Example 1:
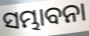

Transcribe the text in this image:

ସମ୍ଭାବନା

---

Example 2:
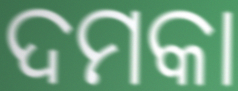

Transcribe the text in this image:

ଦମକା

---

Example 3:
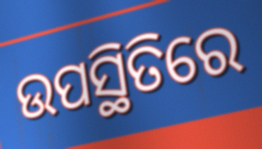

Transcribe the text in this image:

ଉପସ୍ଥିତିରେ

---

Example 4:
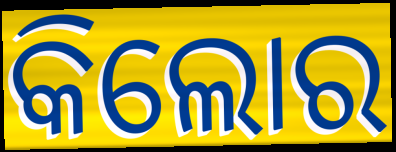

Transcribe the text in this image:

କିଲୋର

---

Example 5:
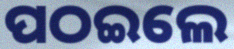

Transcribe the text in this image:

ପଠଇଲେ